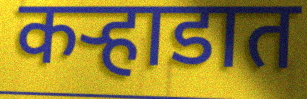
कऱ्हाडात